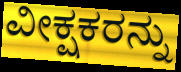
ವೀಕ್ಷಕರನ್ನು